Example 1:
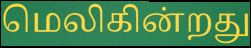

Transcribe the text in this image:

மெலிகின்றது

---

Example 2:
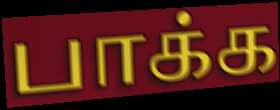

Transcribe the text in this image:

பாக்க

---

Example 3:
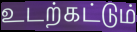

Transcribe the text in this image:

உடற்கட்டும்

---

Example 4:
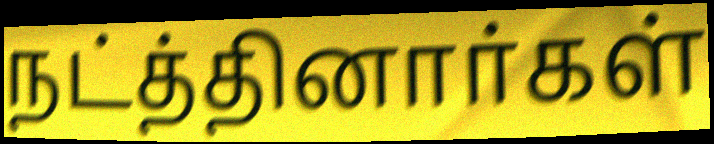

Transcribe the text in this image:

நட்த்தினார்கள்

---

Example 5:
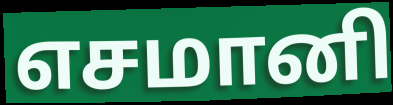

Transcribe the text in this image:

எசமானி